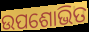
ଉପଶୋଭିତ